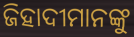
ଜିହାଦୀମାନଙ୍କୁ